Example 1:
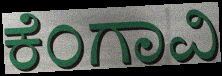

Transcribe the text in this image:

ಕೆಂಗಾವಿ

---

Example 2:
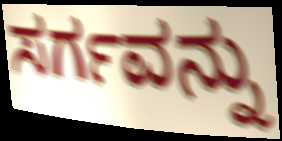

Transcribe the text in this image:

ಸರ್ಗವನ್ನು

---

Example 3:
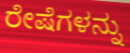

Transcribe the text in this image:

ರೇಷೆಗಳನ್ನು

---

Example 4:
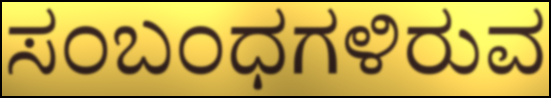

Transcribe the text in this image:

ಸಂಬಂಧಗಳಿರುವ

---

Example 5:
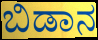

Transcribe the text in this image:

ಬಿಡಾನ